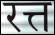
रत्त